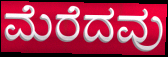
ಮೆರೆದವು